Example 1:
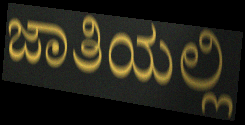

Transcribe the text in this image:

ಜಾತಿಯಲ್ಲಿ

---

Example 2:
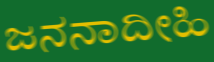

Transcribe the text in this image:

ಜನನಾದೀಹಿ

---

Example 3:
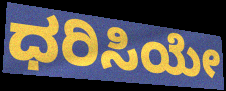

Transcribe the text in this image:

ಧರಿಸಿಯೇ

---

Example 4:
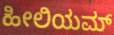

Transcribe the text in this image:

ಹೀಲಿಯಮ್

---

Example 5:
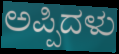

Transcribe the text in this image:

ಅಪ್ಪಿದಳು